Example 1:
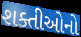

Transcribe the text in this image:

શક્તીઓનો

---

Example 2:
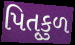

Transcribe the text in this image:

પિતૃકુળ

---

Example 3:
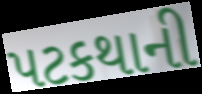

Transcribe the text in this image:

પટકથાની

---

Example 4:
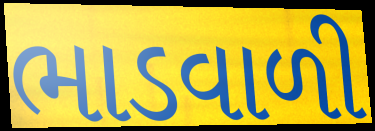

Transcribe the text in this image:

ભાડવાળી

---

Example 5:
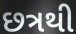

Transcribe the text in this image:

છત્રથી